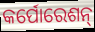
କର୍ପୋରେଶନ୍